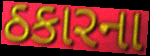
ઠકારના